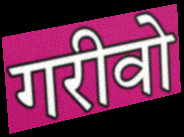
गरीवो